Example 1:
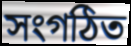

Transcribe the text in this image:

সংগঠিত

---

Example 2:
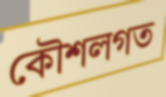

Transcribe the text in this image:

কৌশলগত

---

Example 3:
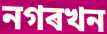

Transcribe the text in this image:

নগৰখন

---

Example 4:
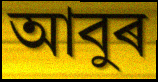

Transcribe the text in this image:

আবুৰ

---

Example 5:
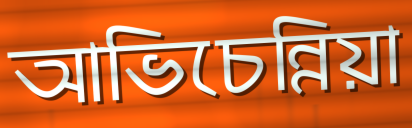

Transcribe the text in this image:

আভিচেন্নিয়া